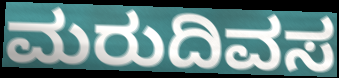
ಮರುದಿವಸ